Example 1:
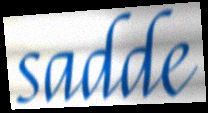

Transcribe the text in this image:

sadde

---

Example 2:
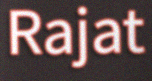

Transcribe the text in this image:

Rajat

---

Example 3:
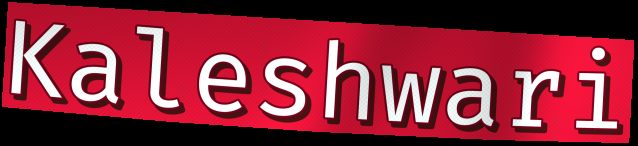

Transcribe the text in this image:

Kaleshwari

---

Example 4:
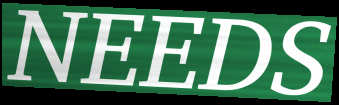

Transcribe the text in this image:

NEEDS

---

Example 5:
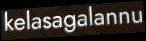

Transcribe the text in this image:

kelasagalannu